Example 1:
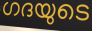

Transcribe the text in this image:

ഗദയുടെ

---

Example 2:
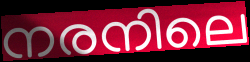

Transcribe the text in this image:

നരനിലെ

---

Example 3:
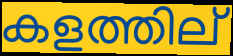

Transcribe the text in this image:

കളത്തില്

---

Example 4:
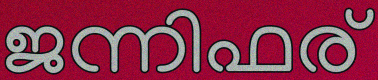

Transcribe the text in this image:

ജന്നിഫര്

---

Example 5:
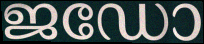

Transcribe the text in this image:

ജഡോ